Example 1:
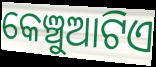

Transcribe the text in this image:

କେଞ୍ଚୁଆଟିଏ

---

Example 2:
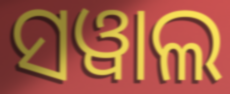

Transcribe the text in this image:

ସୱାଲ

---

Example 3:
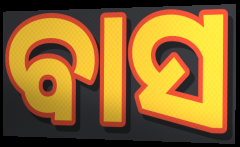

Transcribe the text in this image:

ବାସ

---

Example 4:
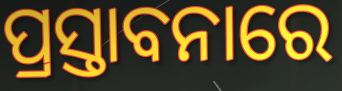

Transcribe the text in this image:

ପ୍ରସ୍ତାବନାରେ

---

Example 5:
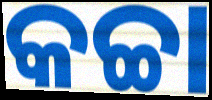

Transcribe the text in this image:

କଚ୍ଚା